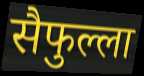
सैफुल्ला